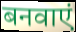
बनवाएं